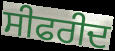
ਸੀਫਰੀਦ